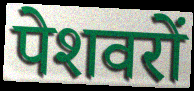
पेशवरों